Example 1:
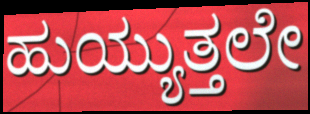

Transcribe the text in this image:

ಹುಯ್ಯುತ್ತಲೇ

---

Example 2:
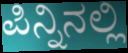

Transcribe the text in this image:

ಪಿನ್ನಿನಲ್ಲಿ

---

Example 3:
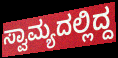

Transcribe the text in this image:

ಸ್ವಾಮ್ಯದಲ್ಲಿದ್ದ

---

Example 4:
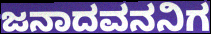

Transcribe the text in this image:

ಜನಾದವನನಿಗ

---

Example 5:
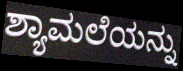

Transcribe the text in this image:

ಶ್ಯಾಮಲೆಯನ್ನು